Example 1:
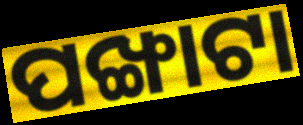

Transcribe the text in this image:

ପଙ୍ଖାଟା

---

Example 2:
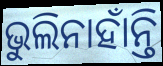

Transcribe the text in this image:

ଭୁଲିନାହାଁନ୍ତି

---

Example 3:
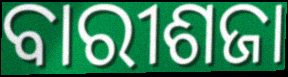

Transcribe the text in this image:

ବାରୀଶଜା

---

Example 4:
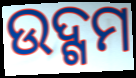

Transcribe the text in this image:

ଉଦ୍ଗମ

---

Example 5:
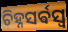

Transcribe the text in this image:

ଚିହ୍ନସର୍ଵସ୍ଵ